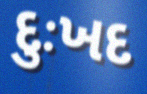
દુઃખદ